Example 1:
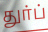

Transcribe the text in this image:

துர்ப்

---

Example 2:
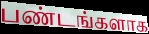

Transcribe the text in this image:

பண்டங்களாக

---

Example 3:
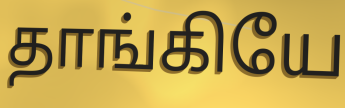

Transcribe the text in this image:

தாங்கியே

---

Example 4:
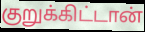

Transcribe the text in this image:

குறுக்கிட்டான்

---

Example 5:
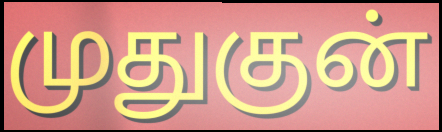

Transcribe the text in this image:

முதுகுன்